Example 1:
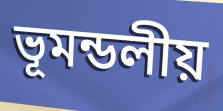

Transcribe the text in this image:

ভূমন্ডলীয়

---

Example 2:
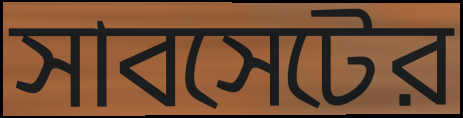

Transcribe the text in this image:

সাবসেটের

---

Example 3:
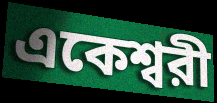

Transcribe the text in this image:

একেশ্বরী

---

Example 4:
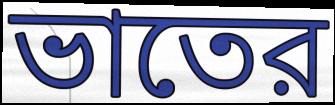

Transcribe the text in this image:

ভাতের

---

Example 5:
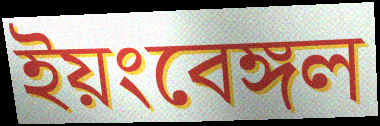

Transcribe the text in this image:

ইয়ংবেঙ্গল